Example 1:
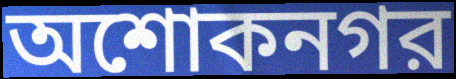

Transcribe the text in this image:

অশোকনগর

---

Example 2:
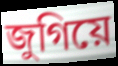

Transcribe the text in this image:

জুগিয়ে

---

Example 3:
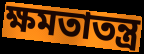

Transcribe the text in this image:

ক্ষমতাতন্ত্র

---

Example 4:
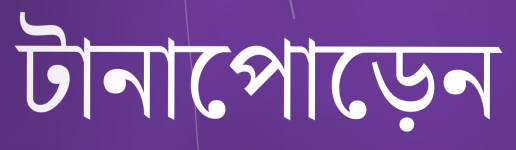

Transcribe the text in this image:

টানাপোড়েন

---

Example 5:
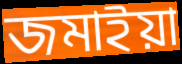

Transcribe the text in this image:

জমাইয়া